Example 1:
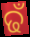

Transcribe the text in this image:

ଢଁ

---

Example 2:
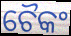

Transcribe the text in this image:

ଚୈକଂ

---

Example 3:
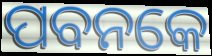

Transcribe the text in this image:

ପବନକେ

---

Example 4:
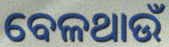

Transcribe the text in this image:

ବେଳଥାଉଁ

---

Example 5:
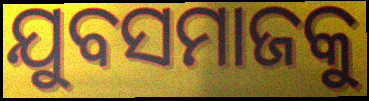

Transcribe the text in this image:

ଯୁବସମାଜକୁ